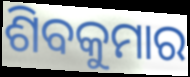
ଶିବକୁମାର